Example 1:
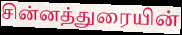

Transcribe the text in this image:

சின்னத்துரையின்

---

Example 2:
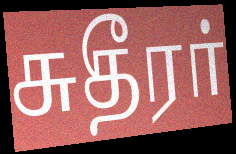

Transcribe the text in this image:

சுதீரர்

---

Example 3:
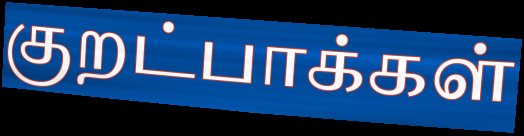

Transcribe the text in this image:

குறட்பாக்கள்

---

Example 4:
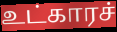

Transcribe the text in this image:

உட்காரச்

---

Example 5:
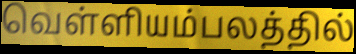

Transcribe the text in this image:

வெள்ளியம்பலத்தில்